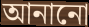
আনানো